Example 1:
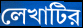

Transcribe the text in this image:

লেখাটির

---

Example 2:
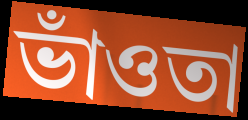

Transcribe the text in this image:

ভাঁওতা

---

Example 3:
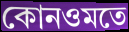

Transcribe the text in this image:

কোনওমতে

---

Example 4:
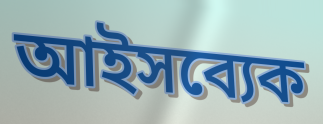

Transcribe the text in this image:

আইসব্যেক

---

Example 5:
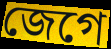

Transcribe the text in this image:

জেগে